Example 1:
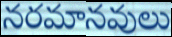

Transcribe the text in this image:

నరమానవులు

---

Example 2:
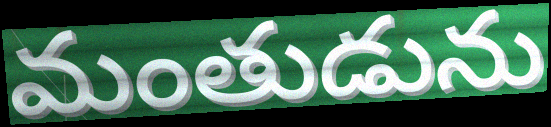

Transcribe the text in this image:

మంతుడును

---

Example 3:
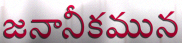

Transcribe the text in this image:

జనానీకమున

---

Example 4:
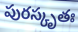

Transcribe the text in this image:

పురస్కృతః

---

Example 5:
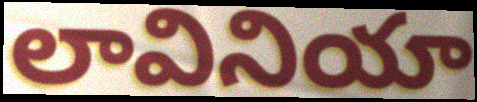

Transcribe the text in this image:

లావినియా